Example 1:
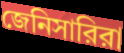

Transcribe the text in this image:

জেনিসারিরা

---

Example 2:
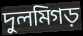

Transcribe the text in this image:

দুলমিগড়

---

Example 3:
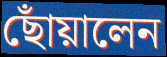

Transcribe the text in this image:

ছোঁয়ালেন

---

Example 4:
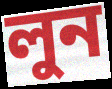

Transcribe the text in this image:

লুন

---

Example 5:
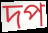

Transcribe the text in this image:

দপ